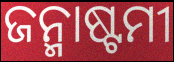
ଜନ୍ମାଷ୍ଟମୀ